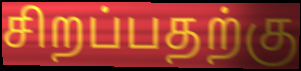
சிறப்பதற்கு